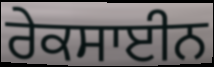
ਰੇਕਸਾਈਨ